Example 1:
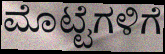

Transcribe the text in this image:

ಮೊಟ್ಟೆಗಳಿಗೆ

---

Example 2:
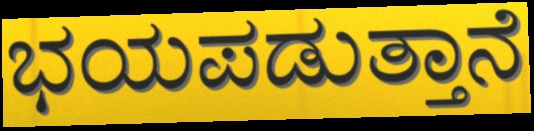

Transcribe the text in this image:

ಭಯಪಡುತ್ತಾನೆ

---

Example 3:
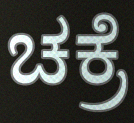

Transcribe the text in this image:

ಚಕ್ರೆ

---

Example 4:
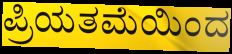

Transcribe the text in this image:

ಪ್ರಿಯತಮೆಯಿಂದ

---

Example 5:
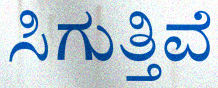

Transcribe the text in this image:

ಸಿಗುತ್ತಿವೆ